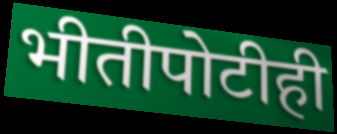
भीतीपोटीही